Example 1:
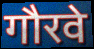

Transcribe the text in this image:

गौरवे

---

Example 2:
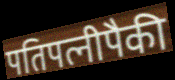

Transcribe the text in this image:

पतिपत्नीपैकी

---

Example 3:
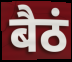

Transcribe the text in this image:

बैठं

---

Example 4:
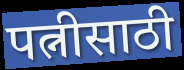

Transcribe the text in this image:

पत्नीसाठी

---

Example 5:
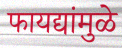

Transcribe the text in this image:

फायद्यांमुळे